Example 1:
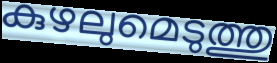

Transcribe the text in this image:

കുഴലുമെടുത്തു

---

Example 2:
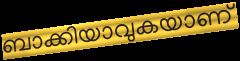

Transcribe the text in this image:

ബാക്കിയാവുകയാണ്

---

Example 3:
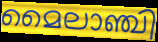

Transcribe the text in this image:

മൈലാഞ്ചി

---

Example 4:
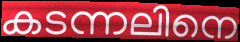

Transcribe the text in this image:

കടന്നലിനെ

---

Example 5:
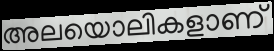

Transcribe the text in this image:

അലയൊലികളാണ്